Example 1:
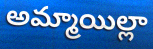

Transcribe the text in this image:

అమ్మాయిల్లా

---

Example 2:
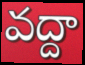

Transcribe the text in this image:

వద్దా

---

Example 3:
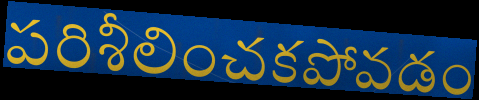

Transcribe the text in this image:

పరిశీలించకపోవడం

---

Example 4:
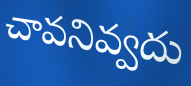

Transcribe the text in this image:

చావనివ్వదు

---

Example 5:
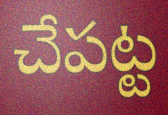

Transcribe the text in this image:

చేపట్ట